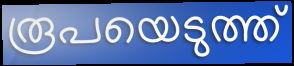
രൂപയെടുത്ത്